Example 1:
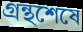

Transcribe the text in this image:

গ্রন্থশেষে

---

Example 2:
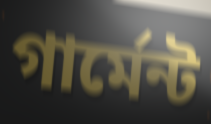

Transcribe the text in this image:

গার্মেন্ট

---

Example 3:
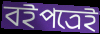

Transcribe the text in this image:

বইপত্রেই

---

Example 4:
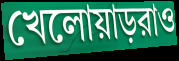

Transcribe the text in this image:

খেলোয়াড়রাও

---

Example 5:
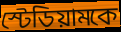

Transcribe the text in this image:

স্টেডিয়ামকে